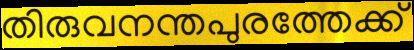
തിരുവനന്തപുരത്തേക്ക്